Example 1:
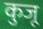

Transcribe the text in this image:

कुजू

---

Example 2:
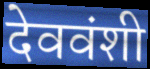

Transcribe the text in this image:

देववंशी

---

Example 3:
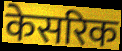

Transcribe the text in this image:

केसरिक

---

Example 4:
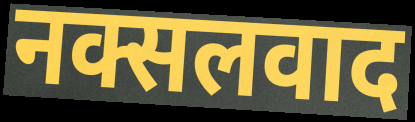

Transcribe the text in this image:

नक्सलवाद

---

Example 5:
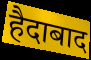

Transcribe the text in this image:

हैदाबाद